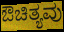
ಔಚಿತ್ಯವು